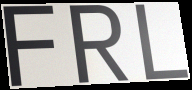
FRL